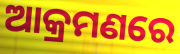
ଆକ୍ରମଣରେ